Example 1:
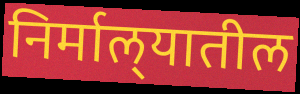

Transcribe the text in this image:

निर्माल्यातील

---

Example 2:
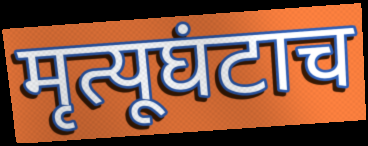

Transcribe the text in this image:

मृत्यूघंटाच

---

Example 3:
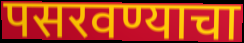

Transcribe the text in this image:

पसरवण्याचा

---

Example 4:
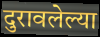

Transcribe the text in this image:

दुरावलेल्या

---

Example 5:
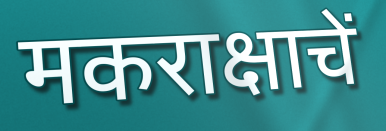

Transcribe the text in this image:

मकराक्षाचें